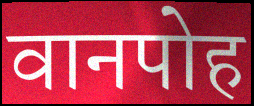
वानपोह